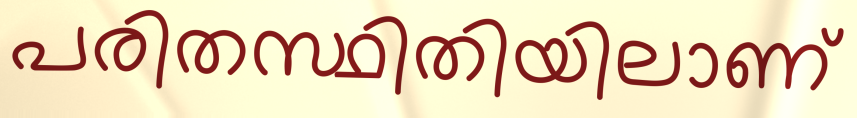
പരിതസ്ഥിതിയിലാണ്